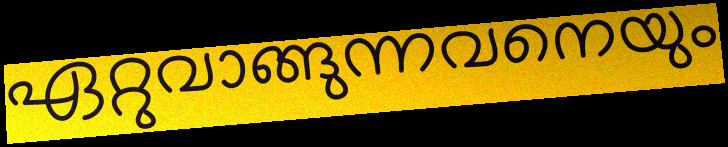
ഏറ്റുവാങ്ങുന്നവനെയും